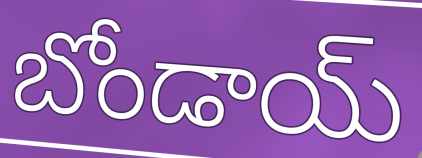
బోండాయ్